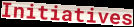
Initiatives